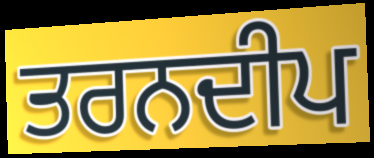
ਤਰਨਦੀਪ